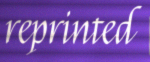
reprinted